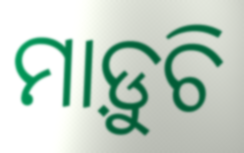
ମାଡ଼ୁଚି